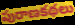
పురాణకథలు